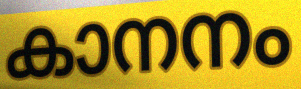
കാനനം